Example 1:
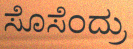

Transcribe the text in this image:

ಸೊಸೆಂದ್ರು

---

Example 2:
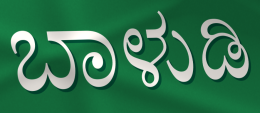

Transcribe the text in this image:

ಬಾಳುಡಿ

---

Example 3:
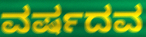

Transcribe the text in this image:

ವರ್ಷದವ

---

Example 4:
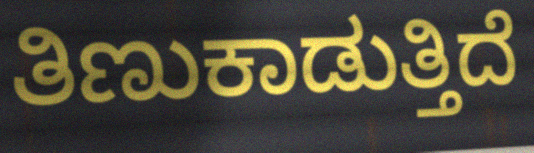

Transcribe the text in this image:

ತಿಣುಕಾಡುತ್ತಿದೆ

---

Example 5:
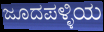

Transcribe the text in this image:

ಜೂದಪಳ್ಳಿಯ